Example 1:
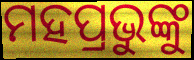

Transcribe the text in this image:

ମହପ୍ରଭୁଙ୍କୁ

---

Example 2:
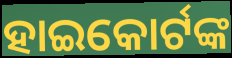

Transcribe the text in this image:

ହାଇକୋର୍ଟଙ୍କ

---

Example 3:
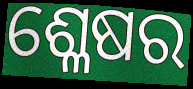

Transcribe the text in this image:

ଶ୍ଳେଷର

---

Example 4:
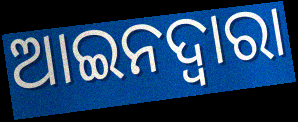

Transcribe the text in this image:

ଆଇନଦ୍ଵାରା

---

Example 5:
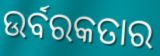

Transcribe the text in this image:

ଉର୍ବରକତାର